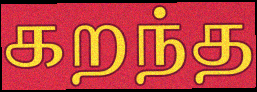
கறந்த